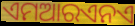
ଏମଆରଏନଏ